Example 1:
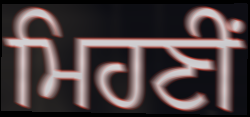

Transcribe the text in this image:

ਮਿਹਣੀਂ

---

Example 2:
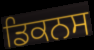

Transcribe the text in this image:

ਡਿਕਨਸ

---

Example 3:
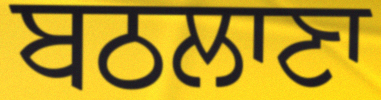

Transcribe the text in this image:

ਬਠਲਾਣਾ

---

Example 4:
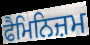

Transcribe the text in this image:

ਫੈਮਿਨਿਜ਼ਮ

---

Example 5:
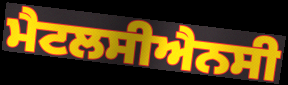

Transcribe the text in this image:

ਮੈਟਲਸੀਐਨਸੀ